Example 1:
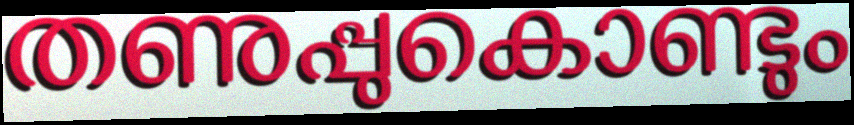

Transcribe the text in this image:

തണുപ്പുകൊണ്ടും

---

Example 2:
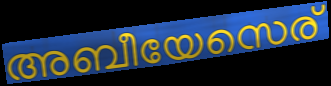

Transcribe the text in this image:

അബീയേസെര്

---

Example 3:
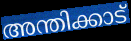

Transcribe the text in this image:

അന്തിക്കാട്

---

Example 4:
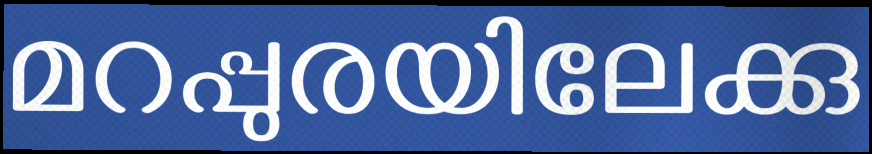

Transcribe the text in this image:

മറപ്പുരയിലേക്കു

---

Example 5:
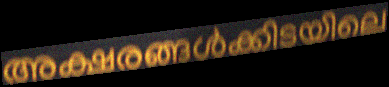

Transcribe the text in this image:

അക്ഷരങ്ങൾക്കിടയിലെ